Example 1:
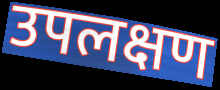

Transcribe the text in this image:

उपलक्षण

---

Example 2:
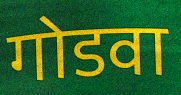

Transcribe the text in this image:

गोडवा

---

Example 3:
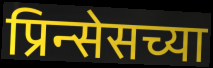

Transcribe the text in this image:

प्रिन्सेसच्या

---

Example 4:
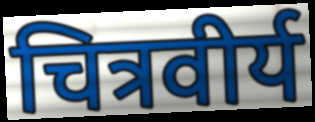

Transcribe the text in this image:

चित्रवीर्य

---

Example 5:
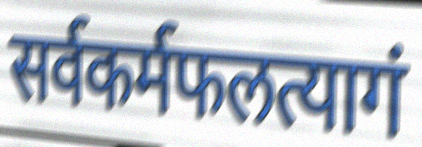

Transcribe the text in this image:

सर्वकर्मफलत्यागं